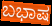
ಬಭಾಷ